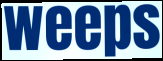
weeps